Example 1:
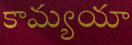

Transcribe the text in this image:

కామ్యయా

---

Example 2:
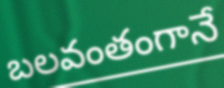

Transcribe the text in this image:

బలవంతంగానే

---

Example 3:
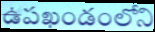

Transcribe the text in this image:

ఉపఖండంలోని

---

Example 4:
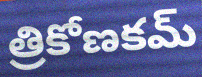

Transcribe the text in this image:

త్రికోణకమ్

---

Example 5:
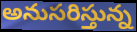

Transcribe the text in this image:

అనుసరిస్తున్న